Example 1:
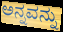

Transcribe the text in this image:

ಅನ್ನವನ್ನು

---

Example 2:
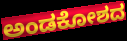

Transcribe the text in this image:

ಅಂಡಕೋಶದ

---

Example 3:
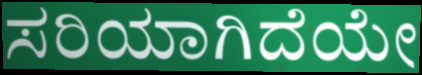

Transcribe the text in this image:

ಸರಿಯಾಗಿದೆಯೇ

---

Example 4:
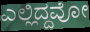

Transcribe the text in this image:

ಎಲ್ಲಿದ್ದವೋ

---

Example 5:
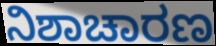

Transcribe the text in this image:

ನಿಶಾಚಾರಣ